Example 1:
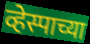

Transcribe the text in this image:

व्हेस्पाच्या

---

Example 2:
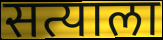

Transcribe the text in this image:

सत्याला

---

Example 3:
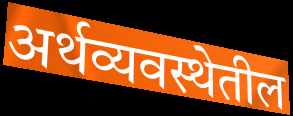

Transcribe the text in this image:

अर्थव्यवस्थेतील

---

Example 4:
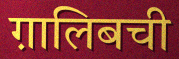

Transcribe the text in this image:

ग़ालिबची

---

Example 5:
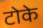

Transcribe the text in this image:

टोके